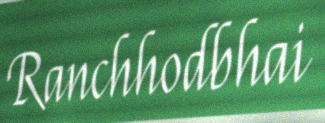
Ranchhodbhai